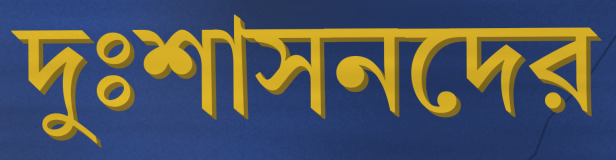
দুঃশাসনদের